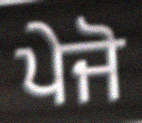
ਪੇਜੋ